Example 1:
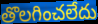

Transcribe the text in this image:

తొలగించలేదు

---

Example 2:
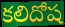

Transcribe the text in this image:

కలిదోష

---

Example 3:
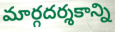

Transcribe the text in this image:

మార్గదర్శకాన్ని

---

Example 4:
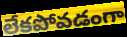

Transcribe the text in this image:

లేకపోవడంగా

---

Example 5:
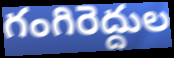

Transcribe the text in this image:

గంగిరెద్దుల